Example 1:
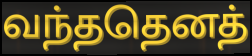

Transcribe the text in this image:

வந்ததெனத்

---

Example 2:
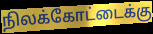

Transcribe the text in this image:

நிலக்கோட்டைக்கு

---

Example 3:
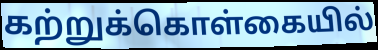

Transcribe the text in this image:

கற்றுக்கொள்கையில்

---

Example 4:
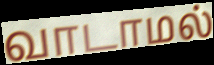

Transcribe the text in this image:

வாடாமல்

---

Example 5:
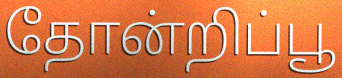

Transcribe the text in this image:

தோன்றிப்பூ